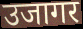
उजागर